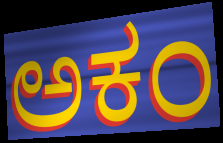
ಅಕಂ